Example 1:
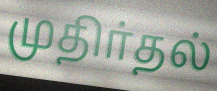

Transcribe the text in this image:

முதிர்தல்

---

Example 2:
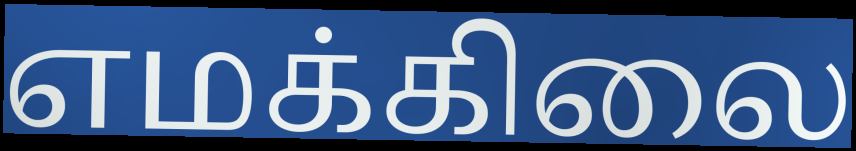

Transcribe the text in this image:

எமக்கிலை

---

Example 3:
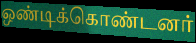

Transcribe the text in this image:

ஒண்டிக்கொண்டனர்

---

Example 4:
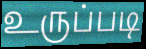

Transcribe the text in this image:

உருப்படி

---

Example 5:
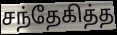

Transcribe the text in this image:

சந்தேகித்த